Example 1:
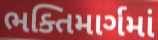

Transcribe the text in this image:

ભક્તિમાર્ગમાં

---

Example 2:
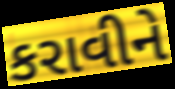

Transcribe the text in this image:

કરાવીને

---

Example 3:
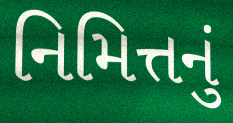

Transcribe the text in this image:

નિમિત્તનું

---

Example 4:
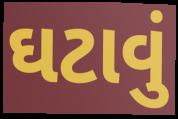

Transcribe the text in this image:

ઘટાવું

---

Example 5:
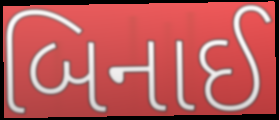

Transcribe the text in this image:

બિનાઈ